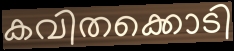
കവിതക്കൊടി